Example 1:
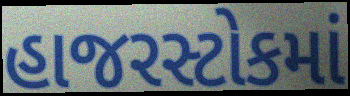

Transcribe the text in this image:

હાજરસ્ટોકમાં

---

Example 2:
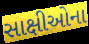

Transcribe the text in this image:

સાક્ષીઓના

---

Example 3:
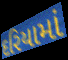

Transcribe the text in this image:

દરિયામાં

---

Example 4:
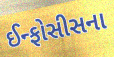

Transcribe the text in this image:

ઈન્ફોસીસના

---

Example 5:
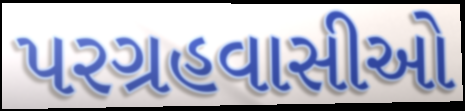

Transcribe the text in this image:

પરગ્રહવાસીઓ